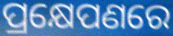
ପ୍ରକ୍ଷେପଣରେ